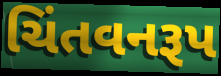
ચિંતવનરૂપ